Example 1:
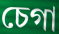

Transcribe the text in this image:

চেগা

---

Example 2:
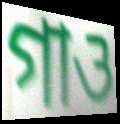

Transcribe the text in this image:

গাও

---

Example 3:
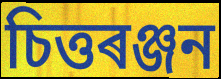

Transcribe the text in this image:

চিত্তৰঞ্জন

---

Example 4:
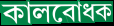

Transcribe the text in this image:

কালবোধক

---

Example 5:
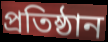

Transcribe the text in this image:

প্ৰতিষ্ঠান